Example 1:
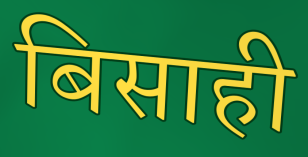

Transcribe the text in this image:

बिसाही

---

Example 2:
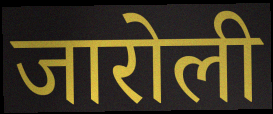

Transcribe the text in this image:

जारोली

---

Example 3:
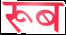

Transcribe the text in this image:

रूब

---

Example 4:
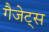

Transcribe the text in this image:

गैजेट्स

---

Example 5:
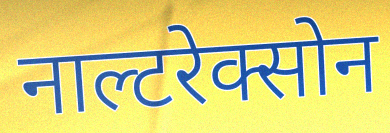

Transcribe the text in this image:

नाल्टरेक्सोन